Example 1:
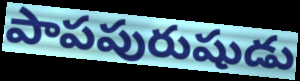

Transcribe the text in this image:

పాపపురుషుడు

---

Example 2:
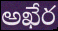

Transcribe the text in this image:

అఖేర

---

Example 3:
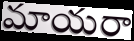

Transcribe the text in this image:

మాయరా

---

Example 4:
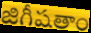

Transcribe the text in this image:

జిగీషతాం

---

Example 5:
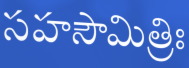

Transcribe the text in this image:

సహసౌమిత్రిః